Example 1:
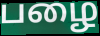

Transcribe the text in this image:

பழை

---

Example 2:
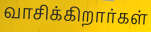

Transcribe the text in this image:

வாசிக்கிறார்கள்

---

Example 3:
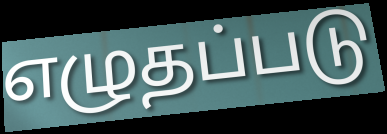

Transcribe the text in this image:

எழுதப்படு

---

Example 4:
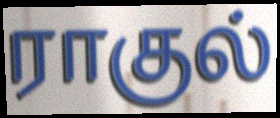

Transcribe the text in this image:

ராகுல்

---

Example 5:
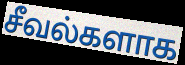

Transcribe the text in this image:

சீவல்களாக